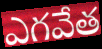
ఎగవేత